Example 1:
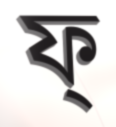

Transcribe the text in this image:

ফ্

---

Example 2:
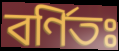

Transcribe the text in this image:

বর্ণিতঃ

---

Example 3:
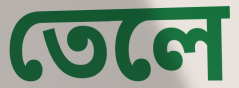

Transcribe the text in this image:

তেলে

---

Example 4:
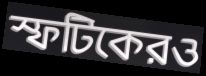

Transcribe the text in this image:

স্ফটিকেরও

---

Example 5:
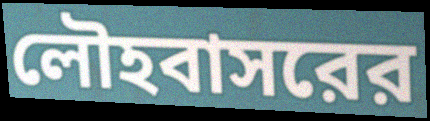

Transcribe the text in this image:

লৌহবাসরের